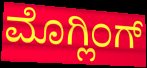
ಮೊಗ್ಲಿಂಗ್